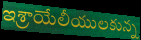
ఇశ్రాయేలీయులకున్న